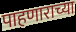
पाहणाराच्या